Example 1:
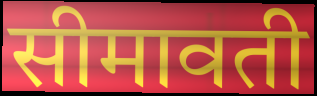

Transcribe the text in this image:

सीमावती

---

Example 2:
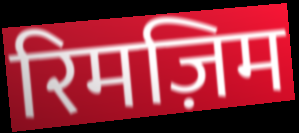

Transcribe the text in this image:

रिमज़िम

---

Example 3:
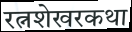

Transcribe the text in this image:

रत्नशेखरकथा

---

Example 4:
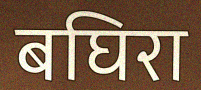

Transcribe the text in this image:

बघिरा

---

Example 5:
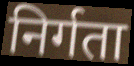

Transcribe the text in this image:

निर्गता